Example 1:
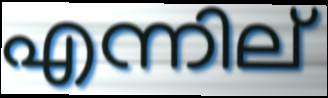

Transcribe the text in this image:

എന്നില്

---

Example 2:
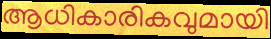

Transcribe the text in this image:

ആധികാരികവുമായി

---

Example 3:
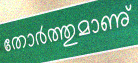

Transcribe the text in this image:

തോർത്തുമാണു്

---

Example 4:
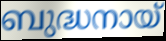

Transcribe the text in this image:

ബുദ്ധനായ്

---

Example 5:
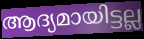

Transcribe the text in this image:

ആദ്യമായിട്ടല്ല